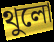
থুলো